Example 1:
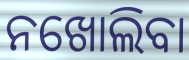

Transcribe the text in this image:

ନଖୋଲିବା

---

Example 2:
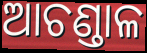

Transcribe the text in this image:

ଆଚଣ୍ଡାଳ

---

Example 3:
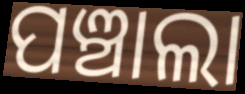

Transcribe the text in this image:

ପଞ୍ଚାଲା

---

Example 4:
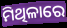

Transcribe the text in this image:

ମିଥିଳାରେ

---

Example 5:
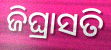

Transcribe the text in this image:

ଜିଘ୍ରାସତି